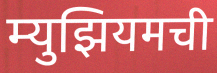
म्युझियमची